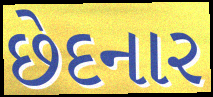
છેદનાર